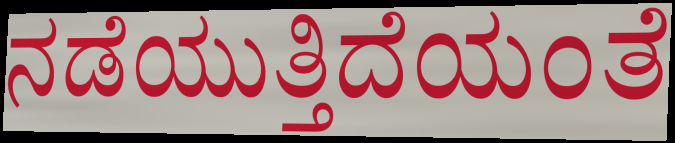
ನಡೆಯುತ್ತಿದೆಯಂತೆ